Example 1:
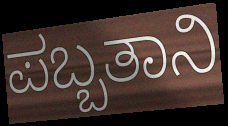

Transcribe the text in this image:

ಪಬ್ಬತಾನಿ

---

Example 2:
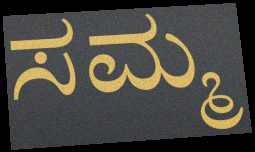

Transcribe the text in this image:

ಸಮ್ಮ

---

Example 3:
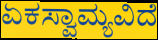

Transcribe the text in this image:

ಏಕಸ್ವಾಮ್ಯವಿದೆ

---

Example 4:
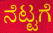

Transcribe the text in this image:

ನೆಟ್ಟಗೆ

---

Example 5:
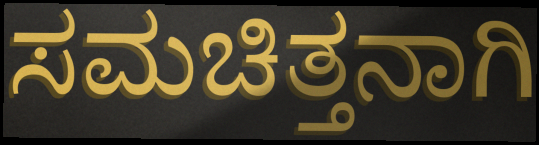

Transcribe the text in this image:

ಸಮಚಿತ್ತನಾಗಿ